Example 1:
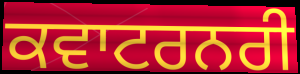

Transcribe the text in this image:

ਕਵਾਟਰਨਰੀ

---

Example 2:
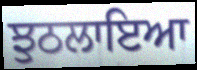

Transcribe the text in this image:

ਝੁਠਲਾਇਆ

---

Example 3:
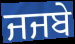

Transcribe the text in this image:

ਜਜਬੇ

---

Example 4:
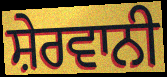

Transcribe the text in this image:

ਸ਼ੇਰਵਾਨੀ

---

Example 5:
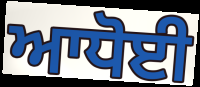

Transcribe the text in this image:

ਆਧੋਈ